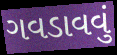
ગવડાવવું